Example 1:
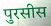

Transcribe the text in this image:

पुरसीस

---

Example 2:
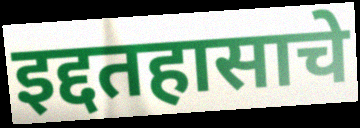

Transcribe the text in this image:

इद्दतहासाचे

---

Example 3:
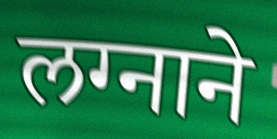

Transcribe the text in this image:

लग्नाने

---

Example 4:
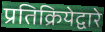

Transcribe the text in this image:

प्रतिक्रियेद्वारे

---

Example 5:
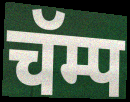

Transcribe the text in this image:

चॅम्प